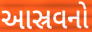
આસ્રવનો